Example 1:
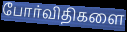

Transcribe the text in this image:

போர்விதிகளை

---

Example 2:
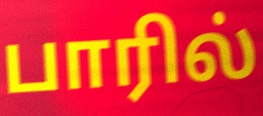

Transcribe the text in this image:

பாரில்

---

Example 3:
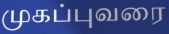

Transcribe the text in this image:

முகப்புவரை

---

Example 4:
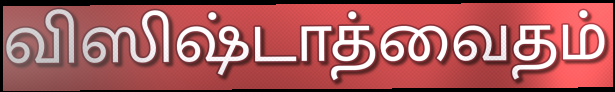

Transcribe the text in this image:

விஸிஷ்டாத்வைதம்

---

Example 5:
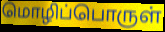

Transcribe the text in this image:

மொழிப்பொருள்